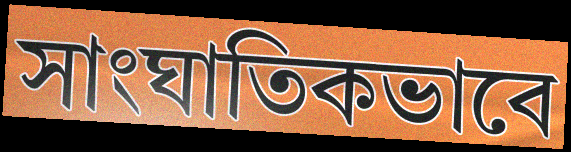
সাংঘাতিকভাবে